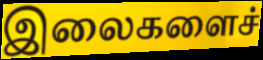
இலைகளைச்